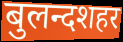
बुलन्दशहर